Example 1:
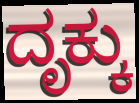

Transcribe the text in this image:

ದೃಕ್ಕು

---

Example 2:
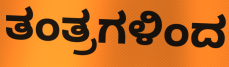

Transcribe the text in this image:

ತಂತ್ರಗಳಿಂದ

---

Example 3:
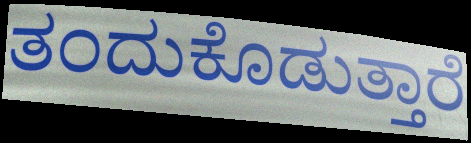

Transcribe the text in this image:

ತಂದುಕೊಡುತ್ತಾರೆ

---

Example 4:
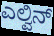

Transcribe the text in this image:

ಎಲ್ವಿನ್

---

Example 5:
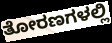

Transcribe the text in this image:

ತೋರಣಗಳಲ್ಲಿ